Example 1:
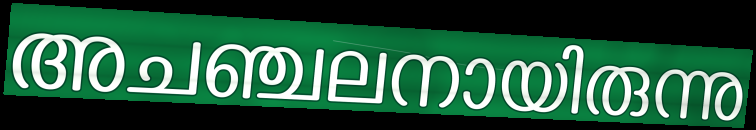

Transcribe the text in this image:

അചഞ്ചലനായിരുന്നു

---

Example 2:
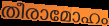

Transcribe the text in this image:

തീരാമോഹം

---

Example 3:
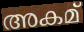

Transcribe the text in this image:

അകമ്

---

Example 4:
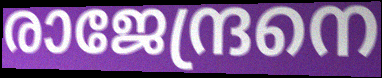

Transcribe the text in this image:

രാജേന്ദ്രനെ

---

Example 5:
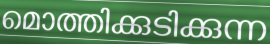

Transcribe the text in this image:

മൊത്തിക്കുടിക്കുന്ന